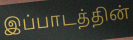
இப்பாடத்தின்